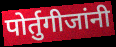
पोर्तुगीजांनी